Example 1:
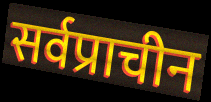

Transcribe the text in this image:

सर्वप्राचीन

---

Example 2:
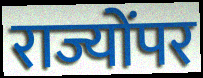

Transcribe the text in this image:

राज्योंपर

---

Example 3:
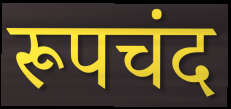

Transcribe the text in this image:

रूपचंद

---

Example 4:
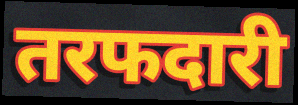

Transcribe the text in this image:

तरफदारी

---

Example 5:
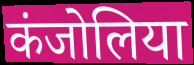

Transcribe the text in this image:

कंजोलिया